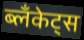
ब्लॅंकेट्स